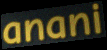
anani